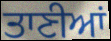
ਤਾਣੀਆਂ